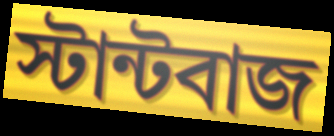
স্টান্টবাজ